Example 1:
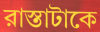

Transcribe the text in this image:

রাস্তাটাকে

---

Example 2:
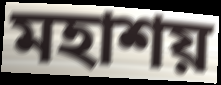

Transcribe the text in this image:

মহাশয়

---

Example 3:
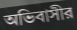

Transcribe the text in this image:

অভিবাসীর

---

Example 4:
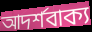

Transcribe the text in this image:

আদর্শবাক্য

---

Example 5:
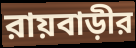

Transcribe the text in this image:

রায়বাড়ীর